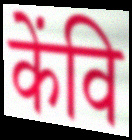
केंवि